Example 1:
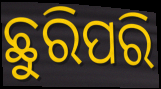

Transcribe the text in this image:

ଛୁରିପରି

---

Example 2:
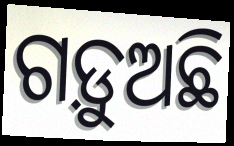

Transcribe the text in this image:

ଗଡ଼ୁଅଛି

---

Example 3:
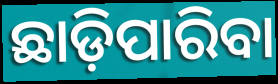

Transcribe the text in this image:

ଛାଡ଼ିପାରିବା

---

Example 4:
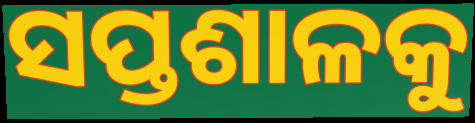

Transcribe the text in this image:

ସପ୍ତଶାଳକୁ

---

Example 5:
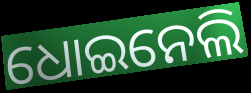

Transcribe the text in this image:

ଧୋଇନେଲି